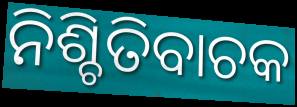
ନିଶ୍ଚିତିବାଚକ